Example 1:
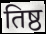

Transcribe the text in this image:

तिष्ठ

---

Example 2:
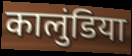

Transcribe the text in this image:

कालुंडिया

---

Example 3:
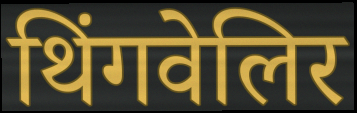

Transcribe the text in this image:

थिंगवेलिर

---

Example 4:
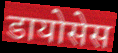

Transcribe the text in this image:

डायोसेस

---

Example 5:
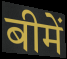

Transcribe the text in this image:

बीमें